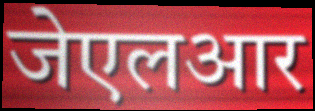
जेएलआर